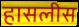
हासलीस